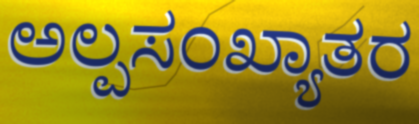
ಅಲ್ಪಸಂಖ್ಯಾತರ